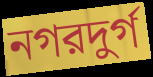
নগরদুর্গ